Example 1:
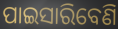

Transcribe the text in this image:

ପାଇସାରିବେଣି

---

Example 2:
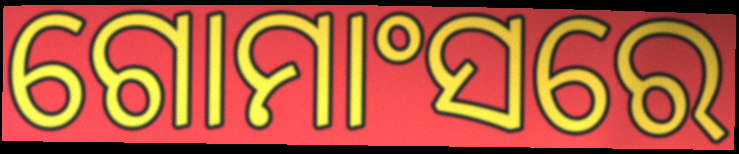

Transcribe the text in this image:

ଗୋମାଂସରେ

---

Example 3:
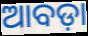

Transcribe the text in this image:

ଆବଡ଼ା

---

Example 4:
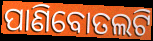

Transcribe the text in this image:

ପାଣିବୋତଲଟି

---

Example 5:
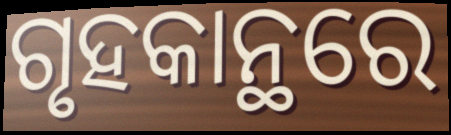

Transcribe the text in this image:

ଗୃହକାନ୍ଥରେ